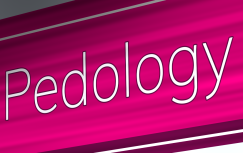
Pedology